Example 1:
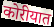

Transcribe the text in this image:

कोरीयात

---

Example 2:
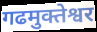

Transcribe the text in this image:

गढमुक्तेश्वर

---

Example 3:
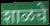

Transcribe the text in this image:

शाळचे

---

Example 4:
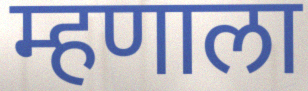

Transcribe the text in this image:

म्‍हणाला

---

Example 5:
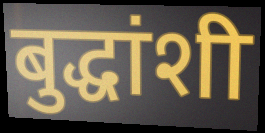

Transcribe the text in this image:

बुद्धांशी